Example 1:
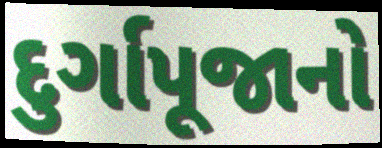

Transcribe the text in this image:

દુર્ગાપૂજાનો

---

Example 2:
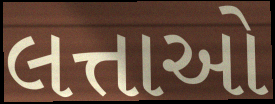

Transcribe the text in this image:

લત્તાઓ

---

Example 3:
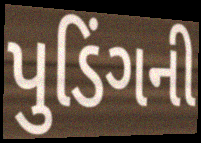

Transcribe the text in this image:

પુડિંગની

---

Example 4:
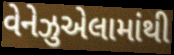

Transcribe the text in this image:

વેનેઝુએલામાંથી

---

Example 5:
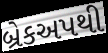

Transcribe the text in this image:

બ્રેકઅપથી